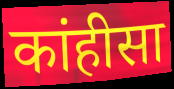
कांहीसा